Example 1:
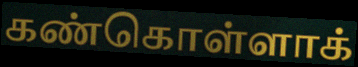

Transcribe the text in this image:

கண்கொள்ளாக்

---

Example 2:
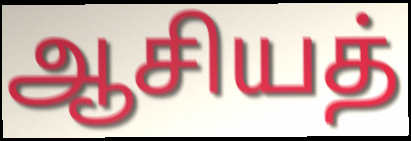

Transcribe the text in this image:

ஆசியத்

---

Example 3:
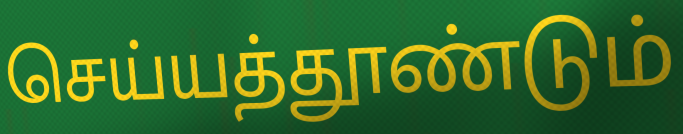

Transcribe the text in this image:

செய்யத்தூண்டும்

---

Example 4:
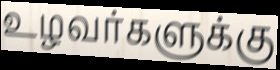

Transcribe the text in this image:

உழவர்களுக்கு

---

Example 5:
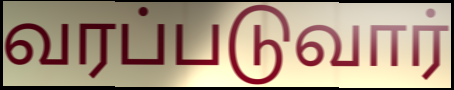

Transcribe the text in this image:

வரப்படுவார்